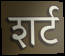
शर्ट